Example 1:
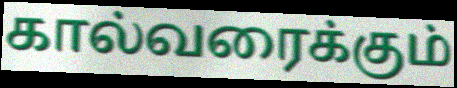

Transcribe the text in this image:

கால்வரைக்கும்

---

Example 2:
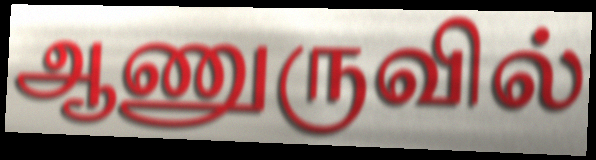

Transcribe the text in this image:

ஆணுருவில்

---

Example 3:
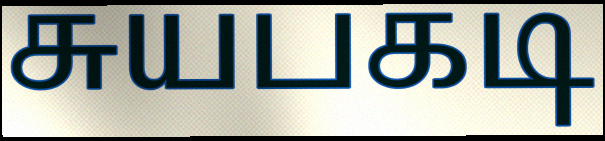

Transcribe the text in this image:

சுயபகடி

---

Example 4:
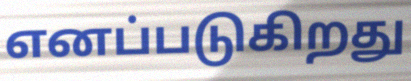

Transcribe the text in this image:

எனப்படுகிறது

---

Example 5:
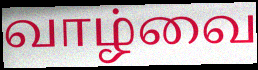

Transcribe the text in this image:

வாழ்வை